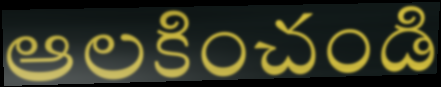
ఆలకించండి